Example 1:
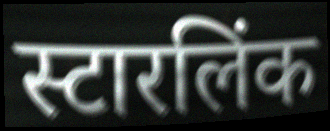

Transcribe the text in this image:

स्टारलिंक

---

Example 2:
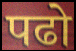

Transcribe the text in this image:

पढो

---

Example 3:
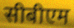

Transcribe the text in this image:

सीबीएम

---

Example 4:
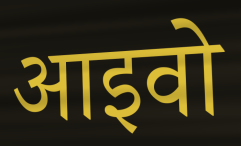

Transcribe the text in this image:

आइवो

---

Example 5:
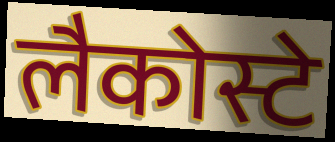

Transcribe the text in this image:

लैकोस्टे